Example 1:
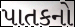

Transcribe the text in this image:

પાતકનો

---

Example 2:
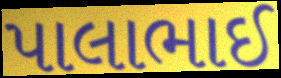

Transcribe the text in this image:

પાલાભાઈ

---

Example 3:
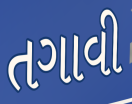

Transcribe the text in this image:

તગાવી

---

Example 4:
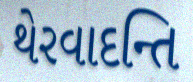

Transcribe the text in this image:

થેરવાદન્તિ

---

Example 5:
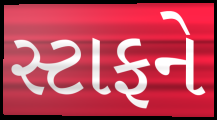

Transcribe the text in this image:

સ્ટાફને